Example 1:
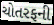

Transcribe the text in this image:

ચોતરફની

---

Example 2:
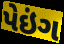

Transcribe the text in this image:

પેઇંગ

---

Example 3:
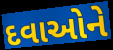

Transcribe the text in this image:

દવાઓને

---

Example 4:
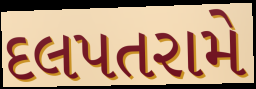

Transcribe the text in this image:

દલપતરામે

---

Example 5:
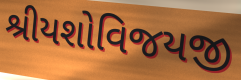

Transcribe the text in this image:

શ્રીયશોવિજયજી